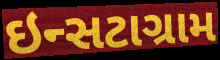
ઇન્સટાગ્રામ